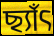
ছ্যাঁৎ